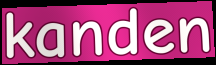
kanden